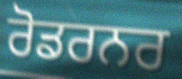
ਰੋਡਰਨਰ